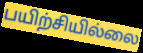
பயிற்சியில்லை